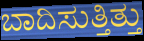
ಬಾದಿಸುತ್ತಿತ್ತು